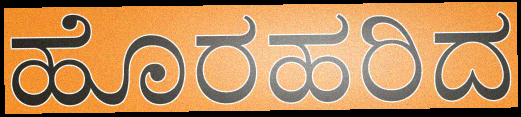
ಹೊರಹರಿದ